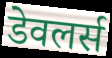
डेवलर्स